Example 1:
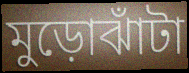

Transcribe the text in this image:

মুড়োঝাঁটা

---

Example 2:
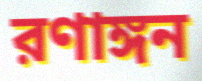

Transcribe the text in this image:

রণাঙ্গন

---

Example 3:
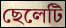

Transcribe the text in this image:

ছেলেটি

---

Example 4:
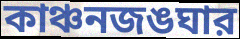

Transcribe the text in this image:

কাঞ্চনজঙঘার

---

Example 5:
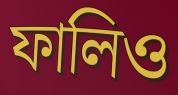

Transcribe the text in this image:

ফালিও